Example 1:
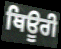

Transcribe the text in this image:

ਥਿਊਰੀ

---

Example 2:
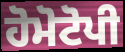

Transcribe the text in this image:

ਹੋਮੋਟੋਪੀ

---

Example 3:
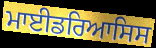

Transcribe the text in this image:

ਮਾਈਡਰਿਆਸਿਸ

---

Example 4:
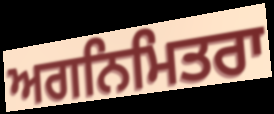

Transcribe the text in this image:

ਅਗਨਿਮਿਤਰਾ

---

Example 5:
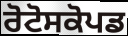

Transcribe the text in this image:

ਰੋਟੋਸਕੋਪਡ